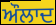
ਔਲਾਦ